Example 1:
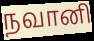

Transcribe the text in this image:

நவானி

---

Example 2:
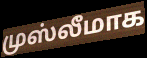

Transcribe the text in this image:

முஸ்லீமாக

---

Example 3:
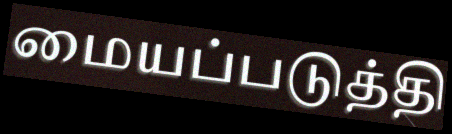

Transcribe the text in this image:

மையப்படுத்தி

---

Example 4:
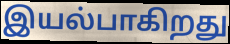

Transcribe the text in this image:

இயல்பாகிறது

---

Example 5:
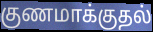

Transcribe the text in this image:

குணமாக்குதல்